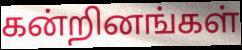
கன்றினங்கள்